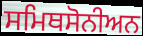
ਸਮਿਥਸੋਨੀਅਨ